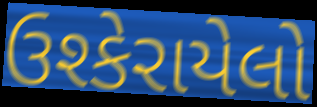
ઉશ્કેરાયેલો